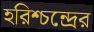
হরিশ্চন্দ্রের